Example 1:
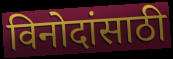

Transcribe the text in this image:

विनोदांसाठी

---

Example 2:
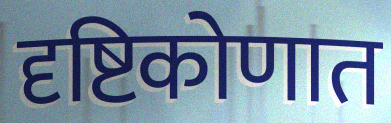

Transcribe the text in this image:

दृष्टिकोणात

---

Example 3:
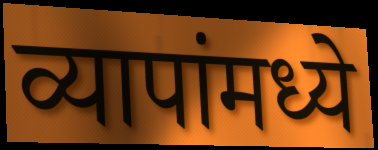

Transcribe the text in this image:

व्यापांमध्ये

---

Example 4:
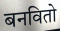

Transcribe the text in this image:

बनवितो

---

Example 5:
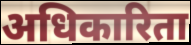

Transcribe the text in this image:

अधिकारिता